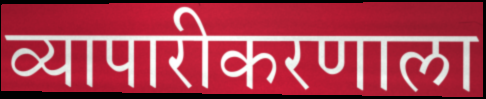
व्यापारीकरणाला